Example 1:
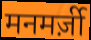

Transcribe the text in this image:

मनमर्ज़ी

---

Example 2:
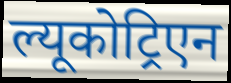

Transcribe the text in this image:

ल्यूकोट्रिएन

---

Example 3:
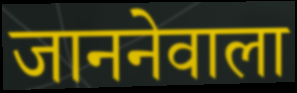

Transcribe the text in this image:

जाननेवाला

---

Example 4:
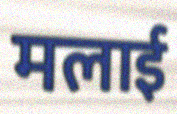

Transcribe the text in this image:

मलाई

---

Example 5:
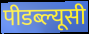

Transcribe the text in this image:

पीडब्ल्यूसी